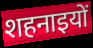
शहनाइयों